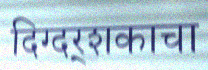
दिग्दर्शकाचा